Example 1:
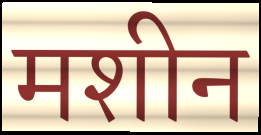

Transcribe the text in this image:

मशीन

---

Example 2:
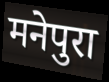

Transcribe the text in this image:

मनेपुरा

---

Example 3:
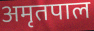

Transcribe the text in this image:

अमृतपाल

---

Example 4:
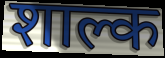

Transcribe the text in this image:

शाल्क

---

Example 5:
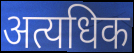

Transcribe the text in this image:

अत्यधिक